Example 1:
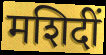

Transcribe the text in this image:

मशिदीं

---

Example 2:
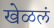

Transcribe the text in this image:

खेळलं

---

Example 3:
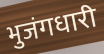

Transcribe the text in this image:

भुजंगधारी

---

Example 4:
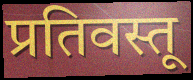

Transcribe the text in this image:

प्रतिवस्तू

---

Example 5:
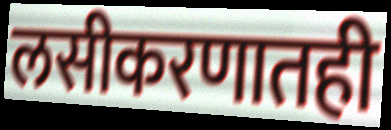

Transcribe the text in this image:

लसीकरणातही